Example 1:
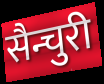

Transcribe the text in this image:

सैन्चुरी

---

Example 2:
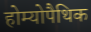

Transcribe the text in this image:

होम्योपैथिक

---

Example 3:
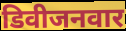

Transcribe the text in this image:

डिवीजनवार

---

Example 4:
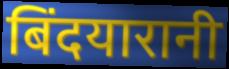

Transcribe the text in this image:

बिंदयारानी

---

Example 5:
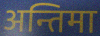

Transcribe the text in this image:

अन्तिमा